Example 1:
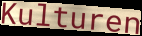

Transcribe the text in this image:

Kulturen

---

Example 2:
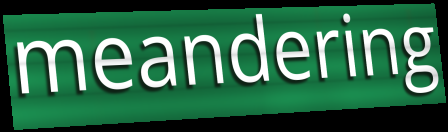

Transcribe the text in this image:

meandering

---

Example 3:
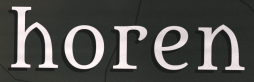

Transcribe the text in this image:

horen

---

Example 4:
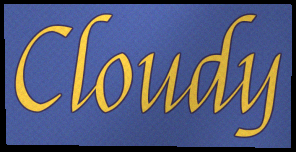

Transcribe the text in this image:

Cloudy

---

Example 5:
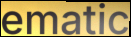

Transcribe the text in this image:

ematic